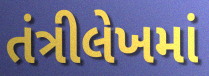
તંત્રીલેખમાં